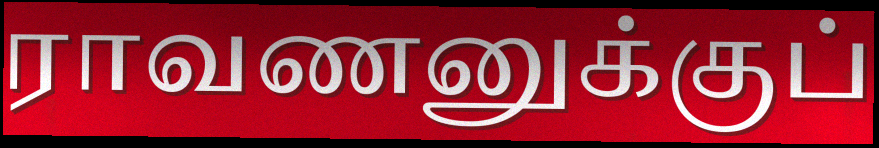
ராவணனுக்குப்